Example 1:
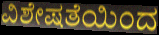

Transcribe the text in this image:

ವಿಶೇಷತೆಯಿಂದ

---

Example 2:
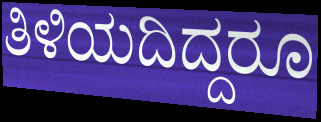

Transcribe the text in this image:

ತಿಳಿಯದಿದ್ದರೂ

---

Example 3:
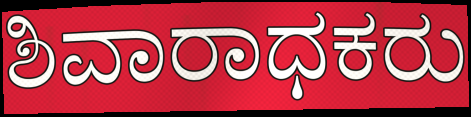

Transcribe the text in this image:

ಶಿವಾರಾಧಕರು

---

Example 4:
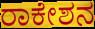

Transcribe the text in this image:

ರಾಕೇಶನ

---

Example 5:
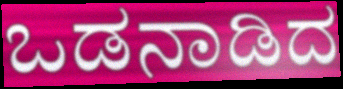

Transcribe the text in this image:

ಒಡನಾಡಿದ